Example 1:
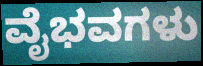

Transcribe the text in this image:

ವೈಭವಗಳು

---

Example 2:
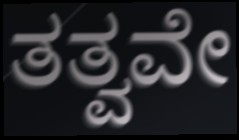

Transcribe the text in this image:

ತತ್ವವೇ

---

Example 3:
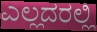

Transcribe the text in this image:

ಎಲ್ಲದರಲ್ಲಿ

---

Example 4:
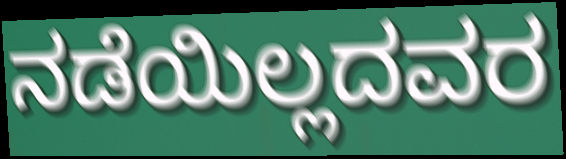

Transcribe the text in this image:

ನಡೆಯಿಲ್ಲದವರ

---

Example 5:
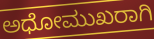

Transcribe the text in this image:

ಅಧೋಮುಖರಾಗಿ